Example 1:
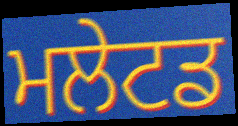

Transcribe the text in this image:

ਮਲੇਟਡ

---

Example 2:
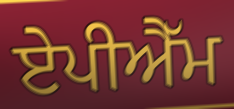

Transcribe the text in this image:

ਏਪੀਐੱਮ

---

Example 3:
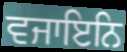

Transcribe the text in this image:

ਵਜਾਇਨਿ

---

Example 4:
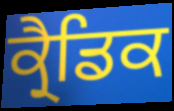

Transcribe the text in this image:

ਕ੍ਰੈਡਿਕ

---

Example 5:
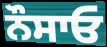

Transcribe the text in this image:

ਨੌਸਾਓ